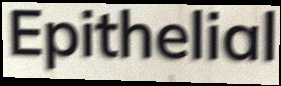
Epithelial